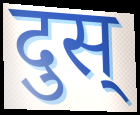
दुस्